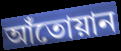
আঁতোয়ান